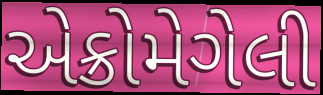
એક્રોમેગેલી